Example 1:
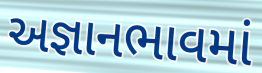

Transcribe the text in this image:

અજ્ઞાનભાવમાં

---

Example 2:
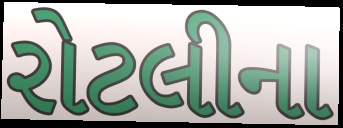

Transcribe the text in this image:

રોટલીના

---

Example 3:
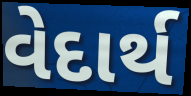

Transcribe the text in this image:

વેદાર્થ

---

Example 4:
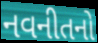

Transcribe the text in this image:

નવનીતનો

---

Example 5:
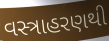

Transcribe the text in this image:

વસ્ત્રાહરણથી